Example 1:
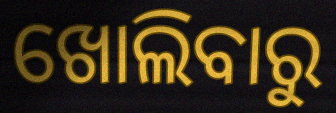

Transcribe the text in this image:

ଖୋଲିବାରୁ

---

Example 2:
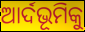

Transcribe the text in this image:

ଆର୍ଦଭୂମିକୁ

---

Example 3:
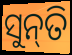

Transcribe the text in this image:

ସୁନ୍‌ତି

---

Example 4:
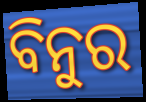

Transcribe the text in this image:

ବିନୁର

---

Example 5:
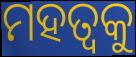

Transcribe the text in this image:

ମହତ୍ଵକୁ